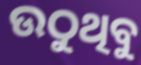
ଉଠୁଥିବୁ